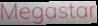
Megastar